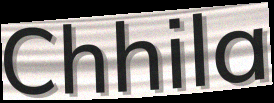
Chhila